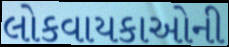
લોકવાયકાઓની